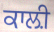
ਕਾਲ਼ੀ